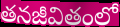
తనజీవితంలో